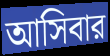
আসিবার